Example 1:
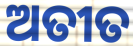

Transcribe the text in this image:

ଅତୀତ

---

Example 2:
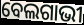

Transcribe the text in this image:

ବେଲଗାଭୀ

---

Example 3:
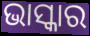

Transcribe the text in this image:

ଭାସ୍କାର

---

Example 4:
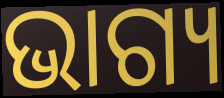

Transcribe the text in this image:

ଭାଗ୍ୟ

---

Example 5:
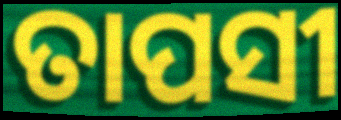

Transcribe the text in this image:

ତାପସୀ